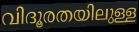
വിദൂരതയിലുള്ള